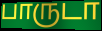
பாருடா